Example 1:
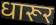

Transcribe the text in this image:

धारूर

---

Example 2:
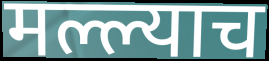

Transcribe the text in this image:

मल्ल्याच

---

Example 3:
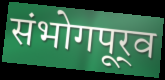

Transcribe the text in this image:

संभोगपूर्व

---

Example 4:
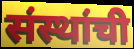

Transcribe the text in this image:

संस्थांची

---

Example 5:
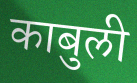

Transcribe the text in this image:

काबुली